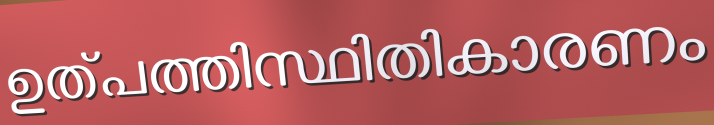
ഉത്പത്തിസ്ഥിതികാരണം